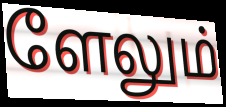
ளேலும்